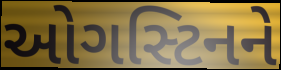
ઓગસ્ટિનને